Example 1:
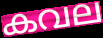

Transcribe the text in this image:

കവല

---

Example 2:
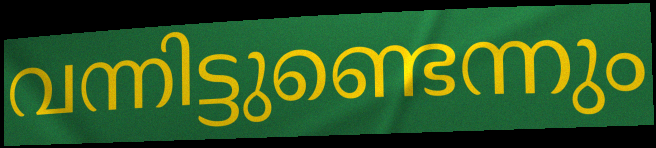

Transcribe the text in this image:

വന്നിട്ടുണ്ടെന്നും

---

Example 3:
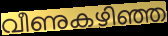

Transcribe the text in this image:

വീണുകഴിഞ്ഞ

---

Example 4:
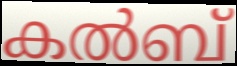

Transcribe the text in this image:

കൽബ്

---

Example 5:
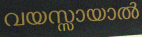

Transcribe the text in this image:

വയസ്സായാൽ